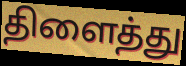
திளைத்து